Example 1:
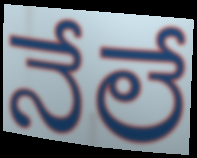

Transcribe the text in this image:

నేలే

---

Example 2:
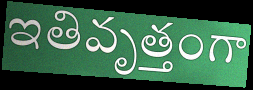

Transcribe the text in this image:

ఇతివృత్తంగా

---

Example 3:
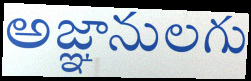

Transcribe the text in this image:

అజ్ఞానులగు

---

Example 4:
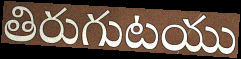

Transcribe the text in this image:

తిరుగుటయు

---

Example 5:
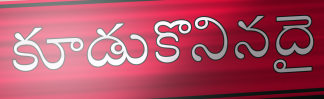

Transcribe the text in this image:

కూడుకొనినదై